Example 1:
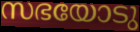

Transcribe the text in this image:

സഭയോടു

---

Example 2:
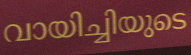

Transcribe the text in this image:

വായിച്ചിയുടെ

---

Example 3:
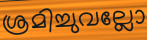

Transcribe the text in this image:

ശ്രമിച്ചുവല്ലോ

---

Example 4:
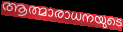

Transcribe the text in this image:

ആത്മാരാധനയുടെ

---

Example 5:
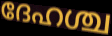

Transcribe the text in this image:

ദേഹശ്ച